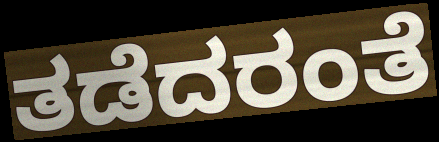
ತಡೆದರಂತೆ